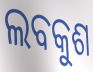
ଲବକୁଶ